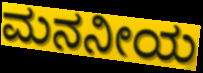
ಮನನೀಯ